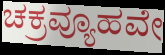
ಚಕ್ರವ್ಯೂಹವೇ